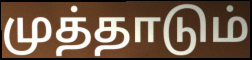
முத்தாடும்